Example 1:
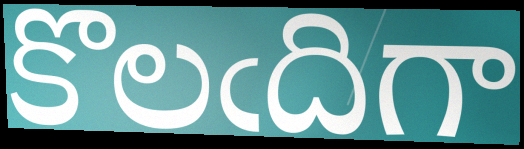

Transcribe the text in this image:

కొలఁదిగా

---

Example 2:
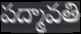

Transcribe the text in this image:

పద్మావతి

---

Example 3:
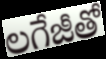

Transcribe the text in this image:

లగేజీతో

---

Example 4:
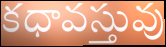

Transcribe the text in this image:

కధావస్తువు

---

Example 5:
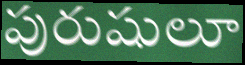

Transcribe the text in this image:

పురుషులూ